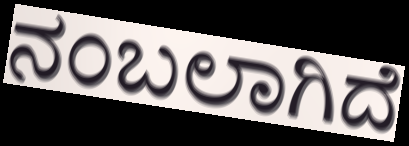
ನಂಬಲಾಗಿದೆ